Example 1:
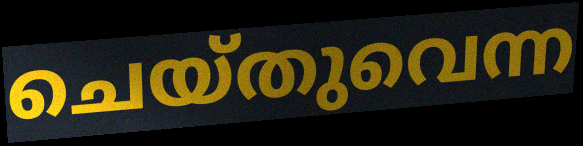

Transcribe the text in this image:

ചെയ്തുവെന്ന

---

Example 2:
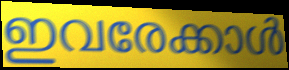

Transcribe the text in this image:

ഇവരേക്കാൾ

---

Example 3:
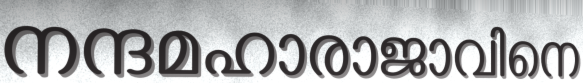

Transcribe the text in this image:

നന്ദമഹാരാജാവിനെ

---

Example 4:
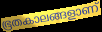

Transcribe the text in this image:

ഭൂതകാലങ്ങളാണ്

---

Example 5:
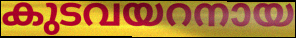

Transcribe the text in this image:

കുടവയറനായ